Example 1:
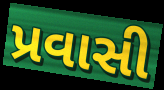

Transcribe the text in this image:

પ્રવાસી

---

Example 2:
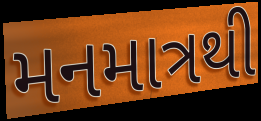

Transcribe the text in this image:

મનમાત્રથી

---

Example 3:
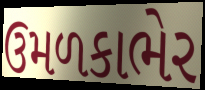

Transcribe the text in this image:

ઉમળકાભેર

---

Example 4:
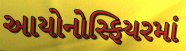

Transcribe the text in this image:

આયોનોસ્ફિયરમાં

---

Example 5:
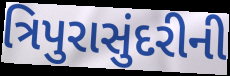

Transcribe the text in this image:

ત્રિપુરાસુંદરીની